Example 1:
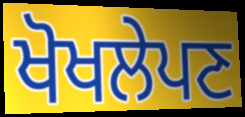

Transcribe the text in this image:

ਖੋਖਲੇਪਣ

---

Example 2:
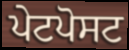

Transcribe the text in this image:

ਪੇਟਪੋਸਟ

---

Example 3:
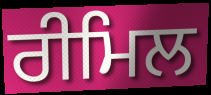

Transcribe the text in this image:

ਰੀਮਿਲ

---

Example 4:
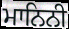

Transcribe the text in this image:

ਮਾਨਿਨੀ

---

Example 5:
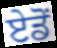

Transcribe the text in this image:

ਏਡੋਂ